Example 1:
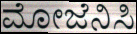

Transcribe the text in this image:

ಮೋಜೆನಿಸಿ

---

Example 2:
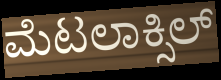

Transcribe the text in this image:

ಮೆಟಲಾಕ್ಸಿಲ್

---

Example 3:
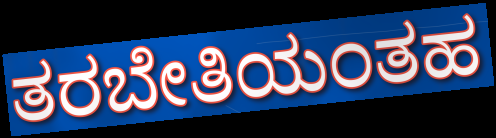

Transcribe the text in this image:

ತರಬೇತಿಯಂತಹ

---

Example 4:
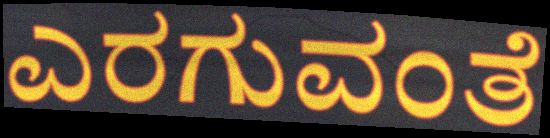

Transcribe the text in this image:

ಎರಗುವಂತೆ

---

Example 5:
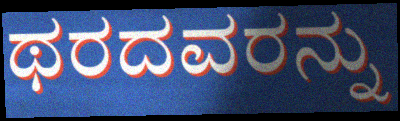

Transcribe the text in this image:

ಥರದವರನ್ನು